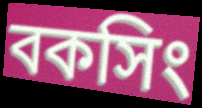
বকসিং